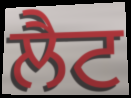
ਲੈਟ